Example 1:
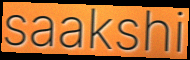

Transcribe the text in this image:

saakshi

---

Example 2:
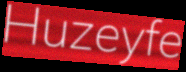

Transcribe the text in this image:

Huzeyfe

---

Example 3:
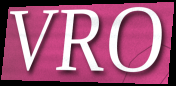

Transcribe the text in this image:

VRO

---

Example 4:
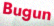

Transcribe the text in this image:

Bugun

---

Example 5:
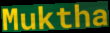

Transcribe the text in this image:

Muktha